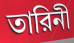
তারিনী